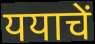
ययाचें